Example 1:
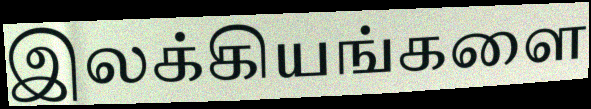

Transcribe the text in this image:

இலக்கியங்களை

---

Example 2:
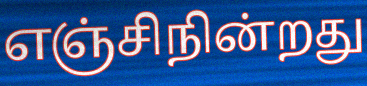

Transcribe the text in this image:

எஞ்சிநின்றது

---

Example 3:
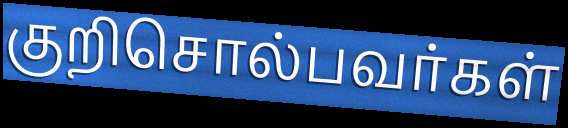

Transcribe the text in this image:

குறிசொல்பவர்கள்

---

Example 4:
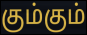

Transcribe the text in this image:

கும்கும்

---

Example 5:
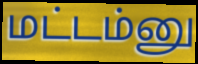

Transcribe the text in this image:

மட்டம்னு